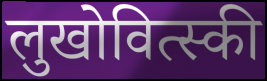
लुखोवित्स्की